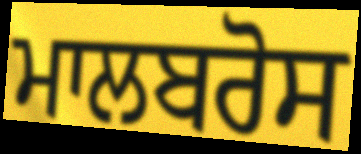
ਮਾਲਬਰੋਸ